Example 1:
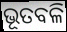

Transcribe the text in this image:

ଭୂତବଳି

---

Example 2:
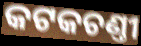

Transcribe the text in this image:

କଟକଚଣ୍ତୀ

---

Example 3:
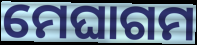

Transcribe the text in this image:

ମେଘାଗମ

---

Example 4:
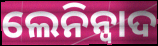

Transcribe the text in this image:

ଲେନିନ୍ବାଦ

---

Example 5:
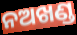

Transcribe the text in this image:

ନଅଖଣ୍ଡ